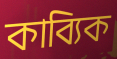
কাব্যিক